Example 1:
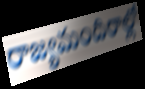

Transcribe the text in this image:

రాజ్యమందిరాల్లో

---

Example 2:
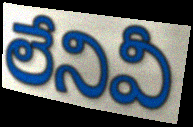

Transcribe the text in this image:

లేనివీ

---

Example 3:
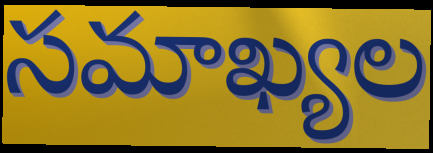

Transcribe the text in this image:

సమాఖ్యల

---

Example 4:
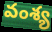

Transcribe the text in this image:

వంశ్య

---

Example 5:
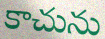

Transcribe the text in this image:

కాచును